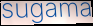
sugama